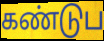
கண்டுப